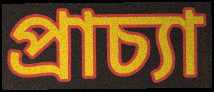
প্ৰাচ্যা